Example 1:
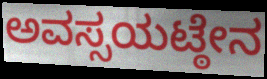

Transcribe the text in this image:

ಅವಸ್ಸಯಟ್ಠೇನ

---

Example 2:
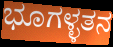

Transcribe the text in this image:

ಭೂಗಳ್ಳತನ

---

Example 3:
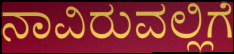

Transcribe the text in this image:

ನಾವಿರುವಲ್ಲಿಗೆ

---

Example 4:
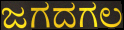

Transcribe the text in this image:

ಜಗದಗಲ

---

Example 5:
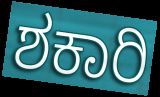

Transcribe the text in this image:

ಶಕಾರಿ